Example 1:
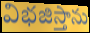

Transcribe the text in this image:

విభజిస్తాను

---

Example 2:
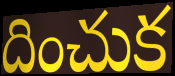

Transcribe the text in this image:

దించుక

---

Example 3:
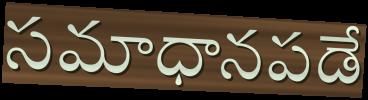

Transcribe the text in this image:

సమాధానపడే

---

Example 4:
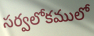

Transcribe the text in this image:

సర్వలోకములో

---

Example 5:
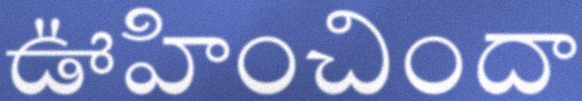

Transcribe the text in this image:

ఊహించిందా